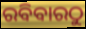
ରବିବାରଠୁ